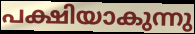
പക്ഷിയാകുന്നു